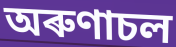
অৰুণাচল